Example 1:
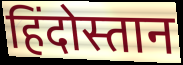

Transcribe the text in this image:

हिंदोस्तान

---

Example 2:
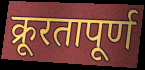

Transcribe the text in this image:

क्रूरतापूर्ण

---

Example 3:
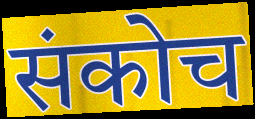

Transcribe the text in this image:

संकोच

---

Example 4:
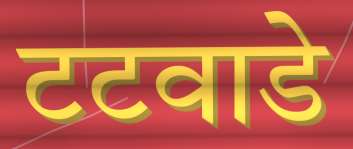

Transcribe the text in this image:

टटवाडे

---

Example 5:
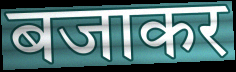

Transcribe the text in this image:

बजाकर